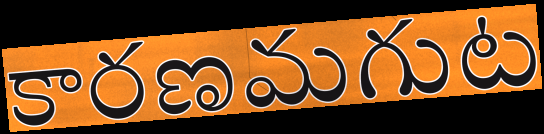
కారణమగుట